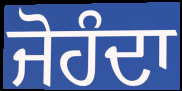
ਜੋਹੰਦਾ